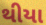
થીયા